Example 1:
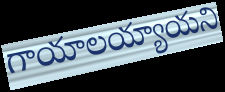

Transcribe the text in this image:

గాయాలయ్యాయని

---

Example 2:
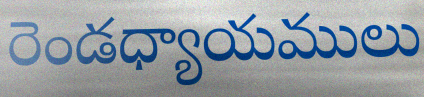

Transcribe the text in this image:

రెండధ్యాయములు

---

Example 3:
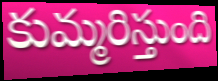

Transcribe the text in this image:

కుమ్మరిస్తుంది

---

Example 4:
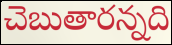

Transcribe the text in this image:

చెబుతారన్నది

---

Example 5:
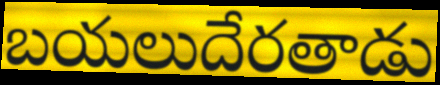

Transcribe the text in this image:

బయలుదేరతాడు